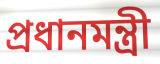
প্রধানমন্ত্রী